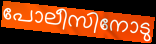
പോലീസിനോടു